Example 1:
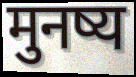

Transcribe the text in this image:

मुनष्य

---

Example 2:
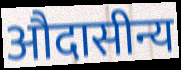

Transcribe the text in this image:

औदासीन्य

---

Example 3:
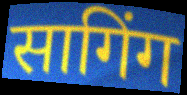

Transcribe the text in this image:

सागिंग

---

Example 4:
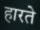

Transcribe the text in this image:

हारते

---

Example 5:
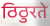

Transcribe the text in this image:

ठिठुरते